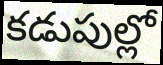
కడుపుల్లో